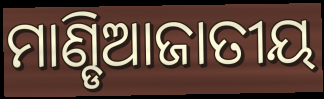
ମାଣ୍ଡିଆଜାତୀୟ